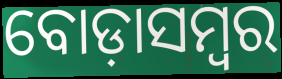
ବୋଡ଼ାସମ୍ବର